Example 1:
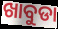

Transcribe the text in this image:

ଖାବୁଡା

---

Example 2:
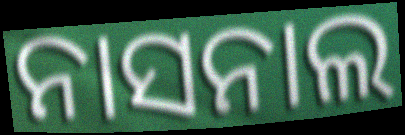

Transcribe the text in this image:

ନାସନାଲ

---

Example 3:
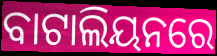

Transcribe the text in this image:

ବାଟାଲିୟନରେ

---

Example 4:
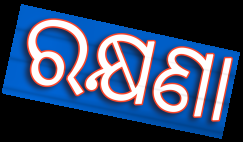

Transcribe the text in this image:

ରକ୍ଷଣା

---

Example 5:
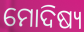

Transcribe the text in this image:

ମୋଦିଷ୍ୟ